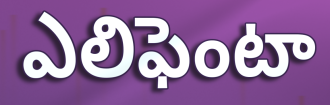
ఎలిఫెంటా